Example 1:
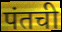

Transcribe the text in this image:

पंतची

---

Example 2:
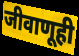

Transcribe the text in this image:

जीवाणूही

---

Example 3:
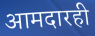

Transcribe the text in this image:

आमदारही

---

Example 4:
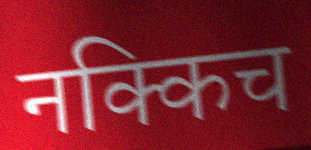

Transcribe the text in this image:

नक्किच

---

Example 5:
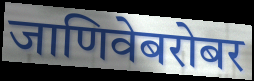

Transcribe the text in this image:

जाणिवेबरोबर